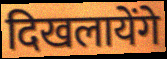
दिखलायेंगे